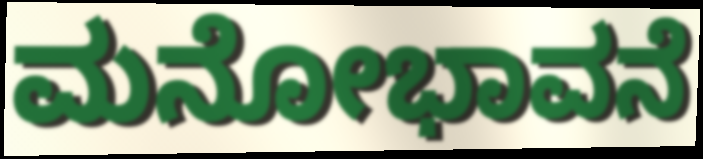
ಮನೋಭಾವನೆ